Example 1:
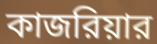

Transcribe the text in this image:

কাজরিয়ার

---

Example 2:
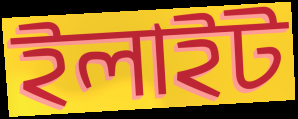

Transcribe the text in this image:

ইলাইট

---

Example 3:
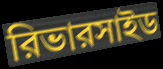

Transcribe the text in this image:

রিভারসাইড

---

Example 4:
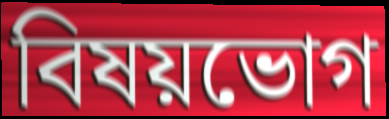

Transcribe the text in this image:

বিষয়ভোগ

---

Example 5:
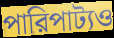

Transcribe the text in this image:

পারিপাট্যও